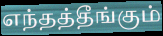
எந்தத்தீங்கும்